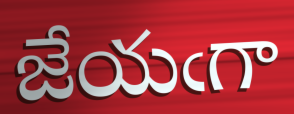
జేయఁగా